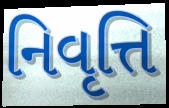
નિવૃત્તિ